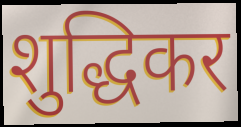
शुद्धिकर